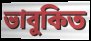
ভাবুকিত